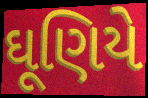
ઘૂણિયે